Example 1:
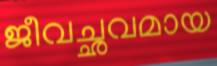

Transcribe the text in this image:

ജീവച്ഛവമായ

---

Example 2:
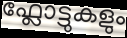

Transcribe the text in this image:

ഫ്ലോട്ടുകളും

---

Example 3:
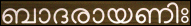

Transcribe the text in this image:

ബാദരായണിഃ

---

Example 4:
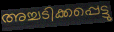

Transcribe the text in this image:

അച്ചടിക്കപ്പെട്ടു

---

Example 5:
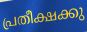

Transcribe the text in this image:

പ്രതീക്ഷക്കു